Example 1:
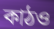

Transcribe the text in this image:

কাঠও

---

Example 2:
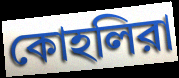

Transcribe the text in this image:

কোহলিরা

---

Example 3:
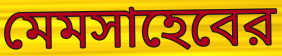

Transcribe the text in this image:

মেমসাহেবের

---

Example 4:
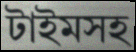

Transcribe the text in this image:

টাইমসহ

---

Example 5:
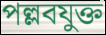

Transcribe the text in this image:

পল্লবযুক্ত